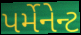
પર્મેનેન્ટ